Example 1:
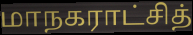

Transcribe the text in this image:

மாநகராட்சித்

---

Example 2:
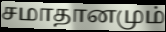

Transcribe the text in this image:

சமாதானமும்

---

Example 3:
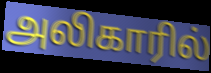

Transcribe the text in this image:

அலிகாரில்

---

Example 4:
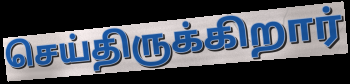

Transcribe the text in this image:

செய்திருக்கிறார்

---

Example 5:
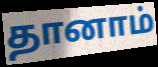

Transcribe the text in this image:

தானாம்